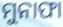
ମୁନାଫା